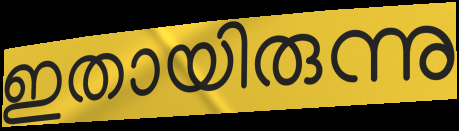
ഇതായിരുന്നു